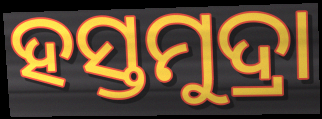
ହସ୍ତମୁଦ୍ରା